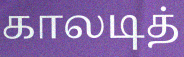
காலடித்